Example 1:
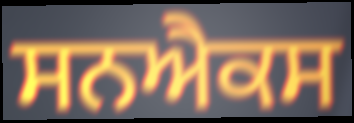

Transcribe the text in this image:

ਸਨਐਕਸ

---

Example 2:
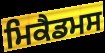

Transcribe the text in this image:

ਮਿਕੈਡਮਸ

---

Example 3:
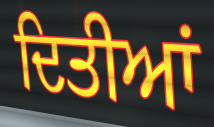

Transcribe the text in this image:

ਦਿਤੀਆਂ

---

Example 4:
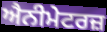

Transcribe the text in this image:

ਐਨੀਮੇਟਰਜ਼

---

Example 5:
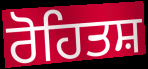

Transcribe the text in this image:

ਰੋਹਿਤਸ਼